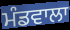
ਮੰਡਵਾਲਾ